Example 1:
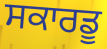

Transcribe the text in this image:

ਸਕਾਰਡੂ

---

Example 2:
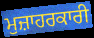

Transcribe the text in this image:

ਮੁਜ਼ਾਹਰਕਾਰੀ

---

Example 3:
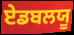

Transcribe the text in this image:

ਏਡਬਲਯੂ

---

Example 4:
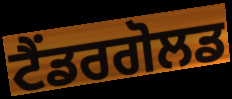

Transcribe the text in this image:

ਟੈਂਡਰਗੋਲਡ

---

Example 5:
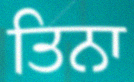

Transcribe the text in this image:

ਤਿਨਾ